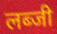
लब्जी